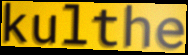
kulthe